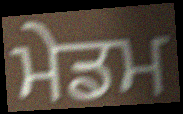
ਮੇਡਮ